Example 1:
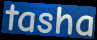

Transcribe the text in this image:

tasha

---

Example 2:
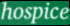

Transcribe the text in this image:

hospice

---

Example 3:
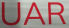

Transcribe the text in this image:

UAR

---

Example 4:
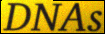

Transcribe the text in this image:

DNAs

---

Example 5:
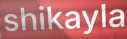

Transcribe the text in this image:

shikayla